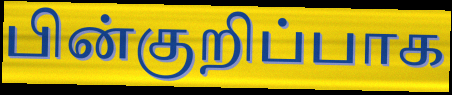
பின்குறிப்பாக